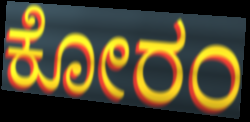
ಕೋರಂ